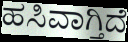
ಹಸಿವಾಗ್ತಿದೆ